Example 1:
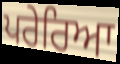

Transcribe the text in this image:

ਪਰੇਰਿਆ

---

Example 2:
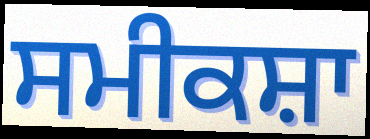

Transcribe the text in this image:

ਸਮੀਕਸ਼ਾ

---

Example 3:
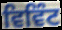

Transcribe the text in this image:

ਵਿਵਿੰਟ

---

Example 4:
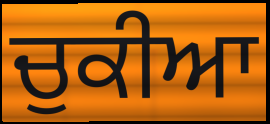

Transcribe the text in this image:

ਚੁਕੀਆ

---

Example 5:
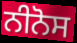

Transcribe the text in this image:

ਨੀਨੋਸ